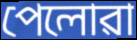
পেলোৱা